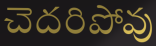
చెదరిపోవు